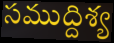
సముద్దిశ్య